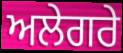
ਅਲੇਗਰੇ